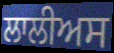
ਲਾਲੀਅਸ